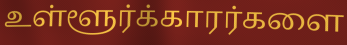
உள்ளூர்க்காரர்களை